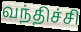
வந்திச்சி